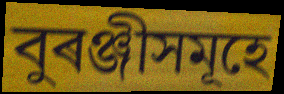
বুৰঞ্জীসমূহে